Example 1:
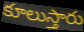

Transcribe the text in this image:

కూలుస్తారు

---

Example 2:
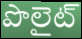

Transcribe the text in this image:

పొలైట్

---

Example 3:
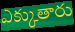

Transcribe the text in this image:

ఎక్కుతారు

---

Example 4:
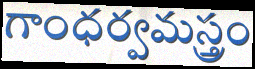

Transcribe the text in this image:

గాంధర్వమస్త్రం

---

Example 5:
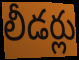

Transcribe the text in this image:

లీడర్లు